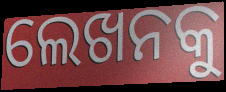
ଲେଖନକୁ